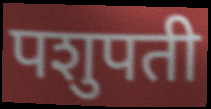
पशुपती